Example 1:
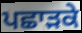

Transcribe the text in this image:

ਪਛਾੜਕੇ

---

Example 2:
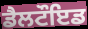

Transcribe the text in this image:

ਡੈਲਟੌਇਡ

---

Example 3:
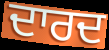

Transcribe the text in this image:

ਦਾਰਦ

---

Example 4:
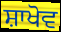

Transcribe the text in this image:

ਸ਼ਾਖੋਵ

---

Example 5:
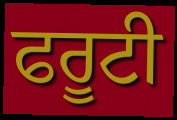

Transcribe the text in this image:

ਫਰੂਟੀ